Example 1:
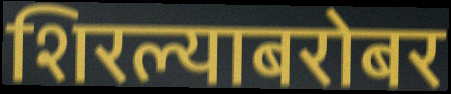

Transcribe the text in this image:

शिरल्याबरोबर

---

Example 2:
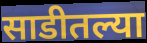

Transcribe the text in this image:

साडीतल्या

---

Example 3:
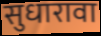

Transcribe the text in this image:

सुधारावा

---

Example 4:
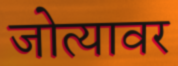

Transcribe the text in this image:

जोत्यावर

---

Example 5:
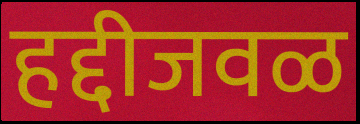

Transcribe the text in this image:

हद्दीजवळ